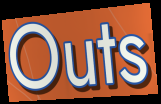
Outs